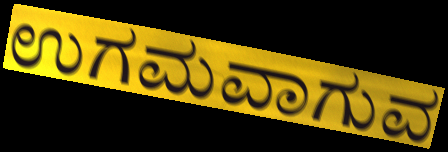
ಉಗಮವಾಗುವ